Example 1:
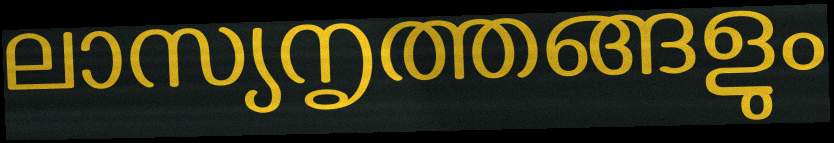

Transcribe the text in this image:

ലാസ്യനൃത്തങ്ങളും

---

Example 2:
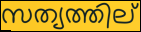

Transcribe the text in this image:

സത്യത്തില്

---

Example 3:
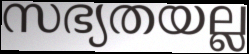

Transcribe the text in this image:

സഭ്യതയല്ല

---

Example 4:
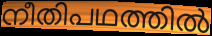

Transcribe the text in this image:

നീതിപഥത്തിൽ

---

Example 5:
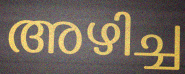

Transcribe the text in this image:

അഴിച്ച